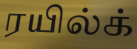
ரயில்க்